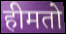
हीमतो